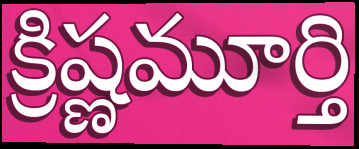
క్రిష్ణమూర్తి